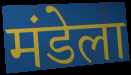
मंडेला